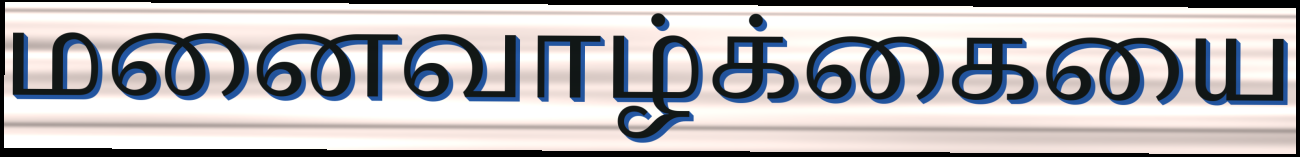
மனைவாழ்க்கையை